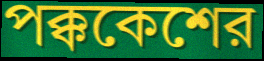
পক্ককেশের